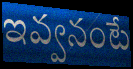
ఇవ్వనంటే